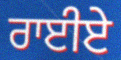
ਰਾਈਏ